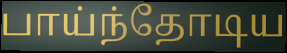
பாய்ந்தோடிய